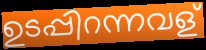
ഉടപ്പിറന്നവള്